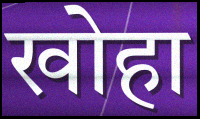
खोहा